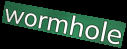
wormhole